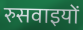
रुसवाइयों